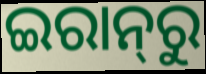
ଇରାନ୍‌ରୁ